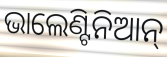
ଭାଲେଣ୍ଟିନିଆନ୍